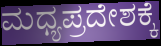
ಮಧ್ಯಪ್ರದೇಶಕ್ಕೆ